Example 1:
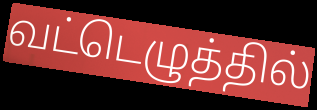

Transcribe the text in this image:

வட்டெழுத்தில்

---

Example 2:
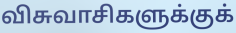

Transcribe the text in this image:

விசுவாசிகளுக்குக்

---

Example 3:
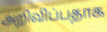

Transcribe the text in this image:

அறிவிப்பதாக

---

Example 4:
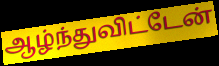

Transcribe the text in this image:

ஆழ்ந்துவிட்டேன்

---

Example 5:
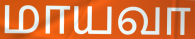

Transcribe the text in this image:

மாயவா